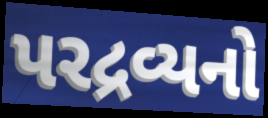
પરદ્રવ્યનો